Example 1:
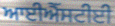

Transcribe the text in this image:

ਆਈਐੱਸਟੀਈ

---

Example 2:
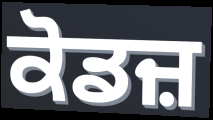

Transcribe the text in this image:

ਕੋਡਜ਼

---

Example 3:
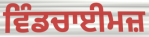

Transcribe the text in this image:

ਵਿੰਡਚਾਈਮਜ਼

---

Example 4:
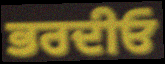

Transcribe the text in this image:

ਭਰਦੀਓ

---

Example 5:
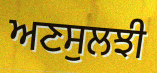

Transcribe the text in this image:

ਅਣਸੁਲਝੀ